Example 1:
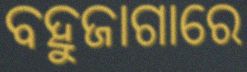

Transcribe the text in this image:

ବହୁଜାଗାରେ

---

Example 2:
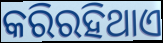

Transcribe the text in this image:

କରିରହିଥାଏ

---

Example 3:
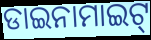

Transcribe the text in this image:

ଡାଇନାମାଇଟ୍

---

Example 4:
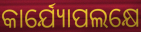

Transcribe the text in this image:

କାର୍ଯ୍ୟୋପଲକ୍ଷେ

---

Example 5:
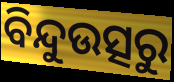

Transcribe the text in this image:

ବିନ୍ଦୁଉତ୍ସରୁ